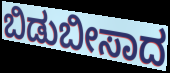
ಬಿಡುಬೀಸಾದ